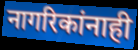
नागरिकांनाही